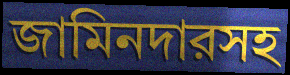
জামিনদারসহ